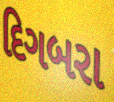
દિગબરા